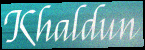
Khaldun